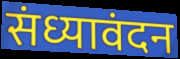
संध्यावंदन